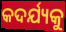
କଦର୍ଯ୍ୟକୁ